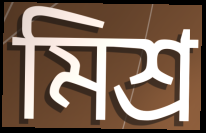
মিশ্র